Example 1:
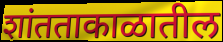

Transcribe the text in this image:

शांतताकाळातील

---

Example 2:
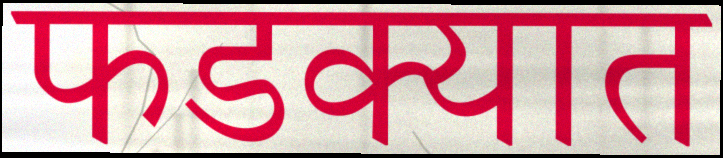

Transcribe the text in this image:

फडक्यात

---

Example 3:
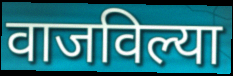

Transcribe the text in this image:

वाजविल्या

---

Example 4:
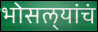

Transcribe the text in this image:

भोसल्यांचं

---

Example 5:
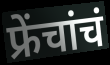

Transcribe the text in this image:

फ्रेंचांचं